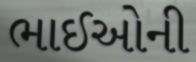
ભાઈઓની